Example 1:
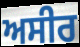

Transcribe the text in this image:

ਅਸੀਰ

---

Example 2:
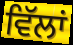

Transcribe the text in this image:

ਵਿੱਲਾਂ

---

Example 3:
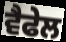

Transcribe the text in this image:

ਵੈਫੇਲ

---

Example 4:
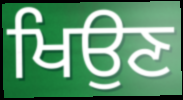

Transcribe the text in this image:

ਖਿਉਣ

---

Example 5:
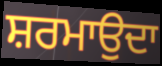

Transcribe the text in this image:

ਸ਼ਰਮਾਉਦਾ